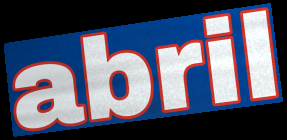
abril